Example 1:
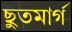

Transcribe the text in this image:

ছুতমার্গ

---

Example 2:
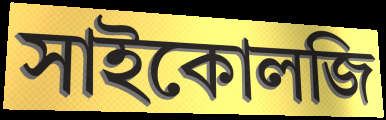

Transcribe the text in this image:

সাইকোলজি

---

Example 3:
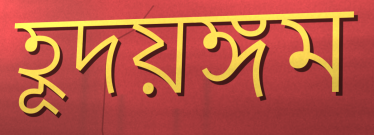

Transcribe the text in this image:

হূদয়ঙ্গম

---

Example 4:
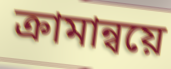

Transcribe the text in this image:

ক্রামান্বয়ে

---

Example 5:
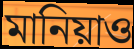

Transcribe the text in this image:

মানিয়াও